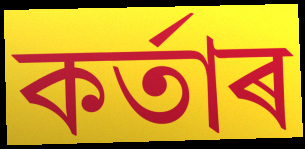
কৰ্তাৰ